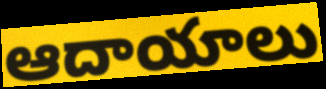
ఆదాయాలు